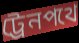
ট্রেনপথে